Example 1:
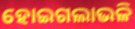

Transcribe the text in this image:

ହୋଇଗଲାଭଳି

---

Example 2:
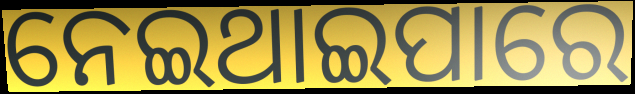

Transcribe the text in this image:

ନେଇଥାଇପାରେ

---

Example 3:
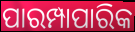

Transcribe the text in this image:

ପାରମ୍ପାପାରିକ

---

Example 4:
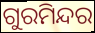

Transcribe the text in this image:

ଗୁରମିନ୍ଦର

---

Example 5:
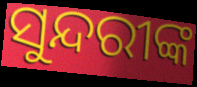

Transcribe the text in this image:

ସୁନ୍ଦରୀଙ୍କ